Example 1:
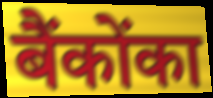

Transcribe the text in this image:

बैंकोंका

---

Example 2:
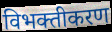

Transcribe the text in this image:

विभक्तीकरण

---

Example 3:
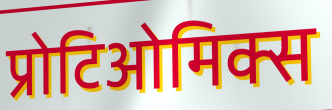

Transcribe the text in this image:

प्रोटिओमिक्स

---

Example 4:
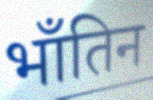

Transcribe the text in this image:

भाँतिन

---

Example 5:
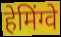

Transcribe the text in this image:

हेमिंग्वे